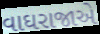
વાઘરાજાએ